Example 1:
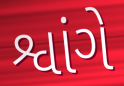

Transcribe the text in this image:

શ્વાંગે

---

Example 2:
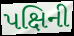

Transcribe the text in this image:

પક્ષિની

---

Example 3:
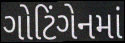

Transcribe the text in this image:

ગોટિંગેનમાં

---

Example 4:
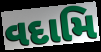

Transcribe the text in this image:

વદામિ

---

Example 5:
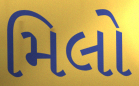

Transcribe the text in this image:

મિલો